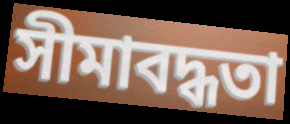
সীমাবদ্ধতা